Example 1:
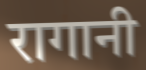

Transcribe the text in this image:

रागानी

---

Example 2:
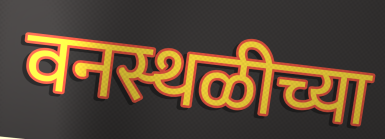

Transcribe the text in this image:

वनस्थळीच्या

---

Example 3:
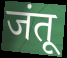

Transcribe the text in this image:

जंतू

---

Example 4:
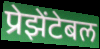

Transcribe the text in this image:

प्रेझेंटेबल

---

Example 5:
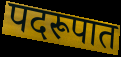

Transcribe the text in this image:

पदरूपात